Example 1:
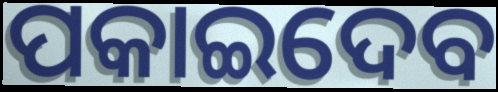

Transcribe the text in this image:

ପକାଇଦେବ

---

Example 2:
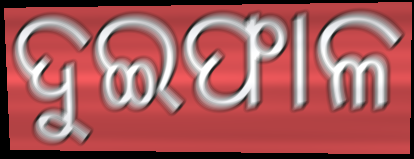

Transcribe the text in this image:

ଦୁଇଫାଳ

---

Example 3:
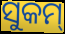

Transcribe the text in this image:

ସୁକମ୍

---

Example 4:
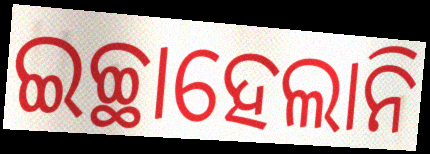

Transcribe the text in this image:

ଇଚ୍ଛାହେଲାନି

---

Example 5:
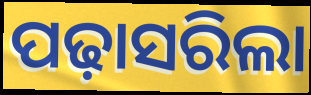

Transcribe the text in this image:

ପଢ଼ାସରିଲା